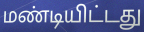
மண்டியிட்டது